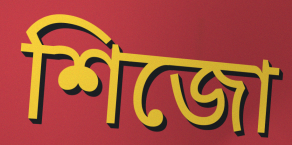
শিজো